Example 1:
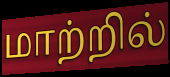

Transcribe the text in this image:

மாற்றில்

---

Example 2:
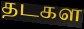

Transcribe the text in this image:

தடகள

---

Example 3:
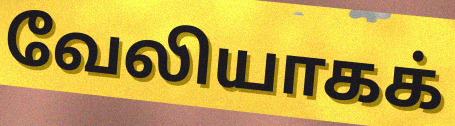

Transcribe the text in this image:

வேலியாகக்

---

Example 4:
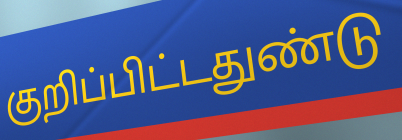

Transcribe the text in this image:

குறிப்பிட்டதுண்டு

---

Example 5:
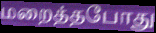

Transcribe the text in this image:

மறைத்தபோது